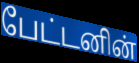
பேட்டனின்